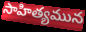
సాహిత్యమున